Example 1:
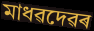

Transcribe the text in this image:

মাধৱদেৱৰ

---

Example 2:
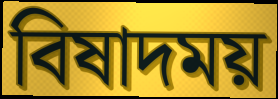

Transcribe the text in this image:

বিষাদময়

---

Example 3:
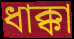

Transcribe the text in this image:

ধাক্কা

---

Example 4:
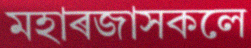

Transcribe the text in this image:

মহাৰজাসকলে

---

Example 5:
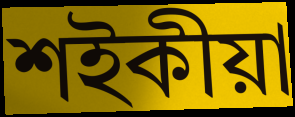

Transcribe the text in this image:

শইকীয়া